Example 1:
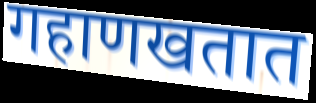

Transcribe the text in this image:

गहाणखतात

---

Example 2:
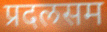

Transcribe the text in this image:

प्रदलसम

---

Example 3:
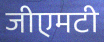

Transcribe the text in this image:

जीएमटी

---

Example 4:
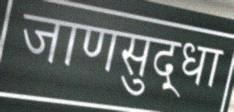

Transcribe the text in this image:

जाणसुद्धा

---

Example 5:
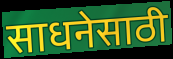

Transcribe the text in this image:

साधनेसाठी